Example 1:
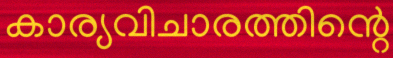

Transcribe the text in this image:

കാര്യവിചാരത്തിന്റെ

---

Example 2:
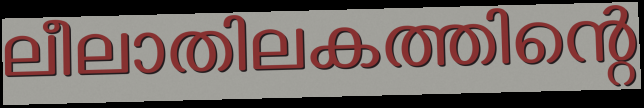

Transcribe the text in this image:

ലീലാതിലകത്തിന്റെ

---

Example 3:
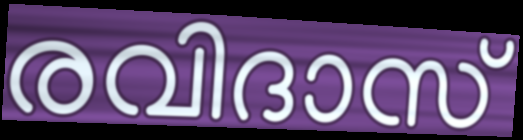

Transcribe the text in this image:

രവിദാസ്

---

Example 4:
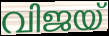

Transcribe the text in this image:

വിജയ്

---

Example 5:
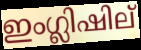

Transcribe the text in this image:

ഇംഗ്ലിഷില്